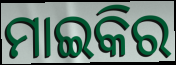
ମାଇକିର